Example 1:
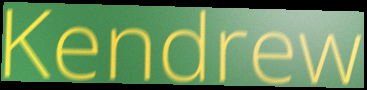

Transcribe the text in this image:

Kendrew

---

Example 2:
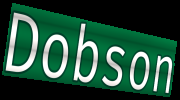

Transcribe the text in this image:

Dobson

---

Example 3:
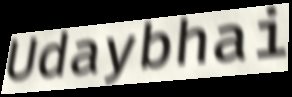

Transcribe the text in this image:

Udaybhai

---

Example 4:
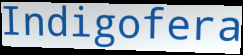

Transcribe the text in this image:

Indigofera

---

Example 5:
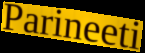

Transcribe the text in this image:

Parineeti